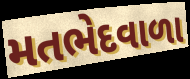
મતભેદવાળા